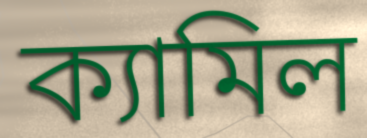
ক্যামিল